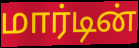
மார்டின்